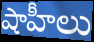
షాహీలు